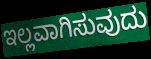
ಇಲ್ಲವಾಗಿಸುವುದು